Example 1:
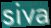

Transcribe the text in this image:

siva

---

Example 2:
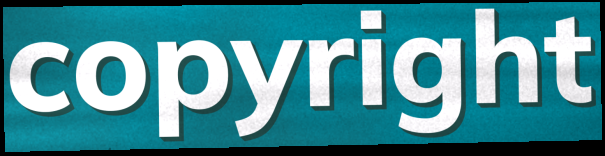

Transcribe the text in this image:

copyright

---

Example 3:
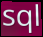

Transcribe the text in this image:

sql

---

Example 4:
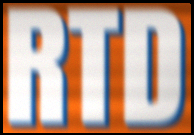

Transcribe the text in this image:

RTD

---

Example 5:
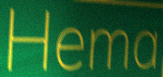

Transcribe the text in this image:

Hema